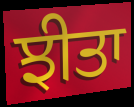
ਝੀਤਾ